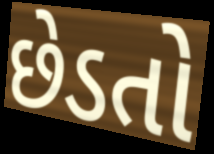
છેડતો